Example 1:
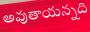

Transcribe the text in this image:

అవుతాయన్నది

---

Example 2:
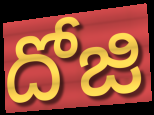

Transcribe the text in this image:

దోజి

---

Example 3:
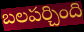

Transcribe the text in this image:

బలపర్చింది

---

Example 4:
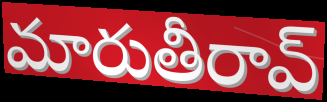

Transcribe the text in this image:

మారుతీరావ్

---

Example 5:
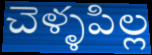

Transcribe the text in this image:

చెళ్ళపిల్ల